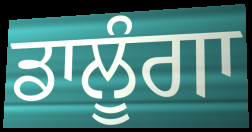
ਡਾਲੂੰਗਾ